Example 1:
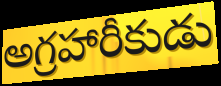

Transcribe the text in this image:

అగ్రహారీకుడు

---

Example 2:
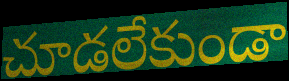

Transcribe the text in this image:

చూడలేకుండా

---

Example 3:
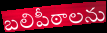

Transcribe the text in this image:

బలిపీఠాలను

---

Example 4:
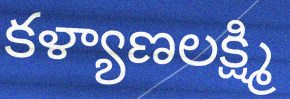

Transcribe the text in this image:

కళ్యాణలక్ష్మి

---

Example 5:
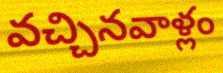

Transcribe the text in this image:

వచ్చినవాళ్లం